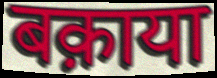
बक़ाया